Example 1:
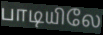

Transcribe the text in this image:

பாடியிலே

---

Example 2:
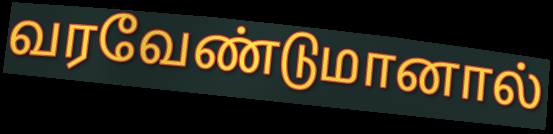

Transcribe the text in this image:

வரவேண்டுமானால்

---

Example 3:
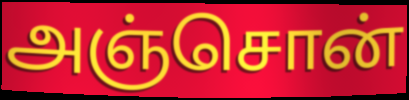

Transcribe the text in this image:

அஞ்சொன்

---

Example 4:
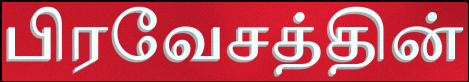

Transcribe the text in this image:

பிரவேசத்தின்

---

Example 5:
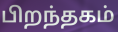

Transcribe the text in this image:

பிறந்தகம்